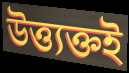
উত্ত্যক্তই